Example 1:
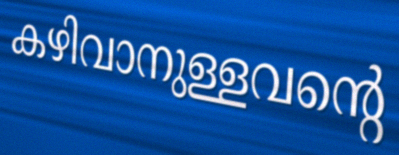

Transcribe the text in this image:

കഴിവാനുള്ളവന്റെ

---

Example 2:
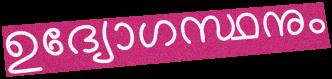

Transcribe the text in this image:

ഉദ്യോഗസ്ഥനും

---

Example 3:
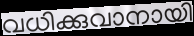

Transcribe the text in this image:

വധിക്കുവാനായി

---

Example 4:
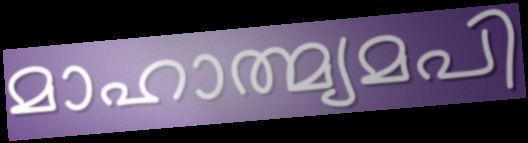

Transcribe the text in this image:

മാഹാത്മ്യമപി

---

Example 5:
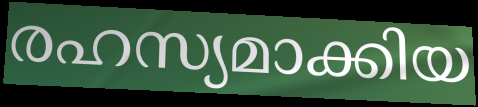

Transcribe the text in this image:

രഹസ്യമാക്കിയ